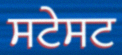
ਸਟੇਸਟ